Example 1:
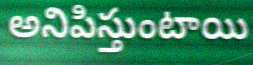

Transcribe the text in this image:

అనిపిస్తుంటాయి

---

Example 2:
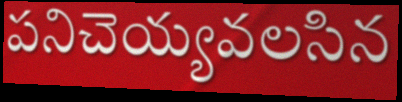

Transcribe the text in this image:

పనిచెయ్యవలసిన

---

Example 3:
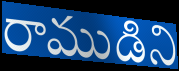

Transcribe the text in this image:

రాముడిని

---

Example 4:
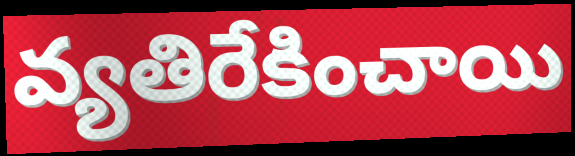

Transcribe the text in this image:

వ్యతిరేకించాయి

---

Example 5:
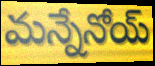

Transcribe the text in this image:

మన్నేనోయ్